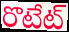
రొటేట్